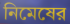
নিমেষের